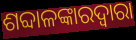
ଶବ୍ଦାଳଙ୍କାରଦ୍ୱାରା